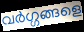
വർഗ്ഗങ്ങളെ